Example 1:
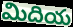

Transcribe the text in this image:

మిదియ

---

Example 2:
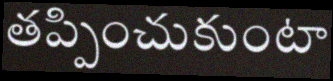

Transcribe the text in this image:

తప్పించుకుంటా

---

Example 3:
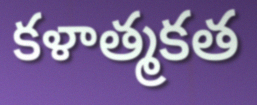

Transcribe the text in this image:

కళాత్మకత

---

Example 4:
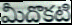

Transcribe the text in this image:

మీదొకటి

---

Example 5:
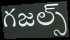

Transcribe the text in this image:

గజల్స్